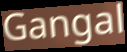
Gangal